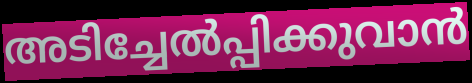
അടിച്ചേൽപ്പിക്കുവാൻ